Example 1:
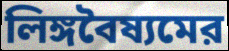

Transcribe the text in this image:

লিঙ্গবৈষ্যমের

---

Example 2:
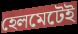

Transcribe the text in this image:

হেলমেটেই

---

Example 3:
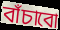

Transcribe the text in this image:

বাঁচাবো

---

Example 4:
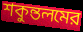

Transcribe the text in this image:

শকুন্তলমের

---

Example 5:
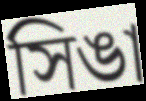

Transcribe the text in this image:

সিঙা